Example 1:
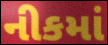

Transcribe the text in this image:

નીકમાં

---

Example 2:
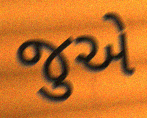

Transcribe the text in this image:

જુએ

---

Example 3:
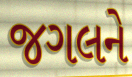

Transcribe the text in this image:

જગલને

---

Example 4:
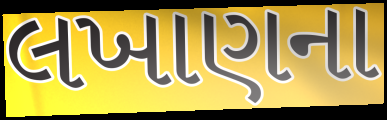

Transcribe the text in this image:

લખાણના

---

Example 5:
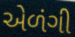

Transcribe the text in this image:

એળંગી